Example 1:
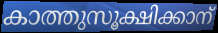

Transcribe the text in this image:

കാത്തുസൂക്ഷിക്കാന്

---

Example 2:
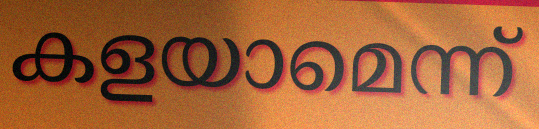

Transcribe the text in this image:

കളയാമെന്ന്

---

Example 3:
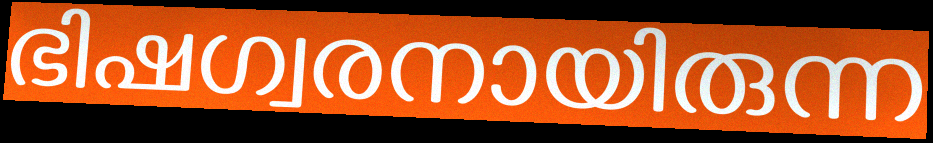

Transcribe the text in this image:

ഭിഷഗ്വരനായിരുന്ന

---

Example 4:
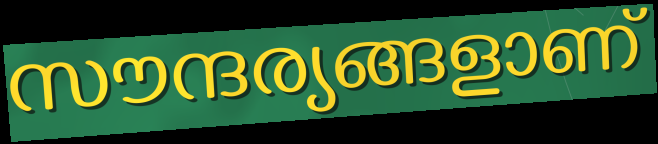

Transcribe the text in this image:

സൗന്ദര്യങ്ങളാണ്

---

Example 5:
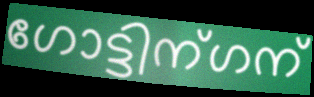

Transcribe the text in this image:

ഗോട്ടിന്ഗന്